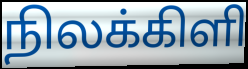
நிலக்கிளி